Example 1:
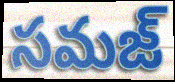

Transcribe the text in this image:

సమజ్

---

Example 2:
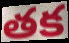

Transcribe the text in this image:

తక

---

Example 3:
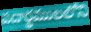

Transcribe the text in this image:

పదార్థములలోని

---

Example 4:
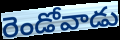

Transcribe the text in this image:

రెండోవాడు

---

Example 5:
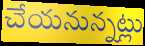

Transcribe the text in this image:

చేయనున్నట్లు